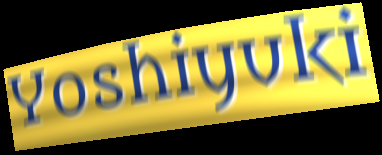
Yoshiyuki